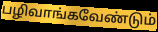
பழிவாங்கவேண்டும்